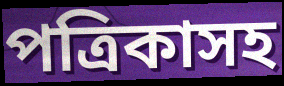
পত্রিকাসহ